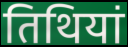
तिथियां